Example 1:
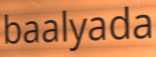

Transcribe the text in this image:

baalyada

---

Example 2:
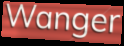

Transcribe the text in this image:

Wanger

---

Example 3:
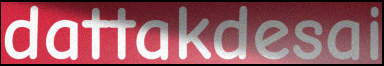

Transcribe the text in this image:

dattakdesai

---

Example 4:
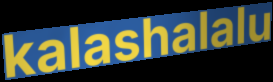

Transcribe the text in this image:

kalashalalu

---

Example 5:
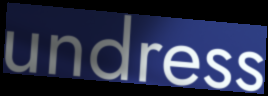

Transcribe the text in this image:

undress